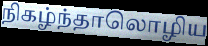
நிகழ்ந்தாலொழிய